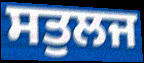
ਸਤੁਲਜ